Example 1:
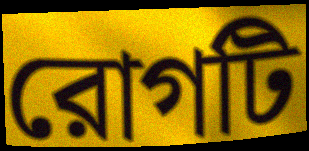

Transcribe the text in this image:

রোগটি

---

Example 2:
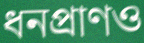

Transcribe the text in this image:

ধনপ্রাণও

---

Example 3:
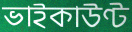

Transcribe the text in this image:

ভাইকাউণ্ট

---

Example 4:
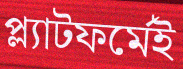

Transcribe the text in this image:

প্ল্যাটফর্মেই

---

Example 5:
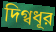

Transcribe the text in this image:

দিগ্বধূর